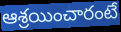
ఆశ్రయించారంటే